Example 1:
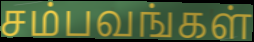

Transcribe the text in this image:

சம்பவங்கள்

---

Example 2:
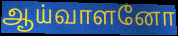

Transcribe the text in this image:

ஆய்வாளனோ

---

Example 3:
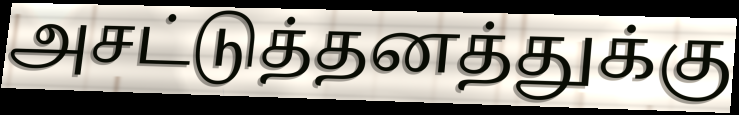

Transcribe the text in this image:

அசட்டுத்தனத்துக்கு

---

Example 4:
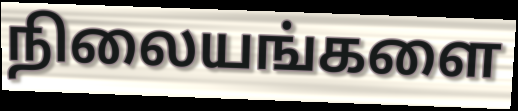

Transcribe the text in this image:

நிலையங்களை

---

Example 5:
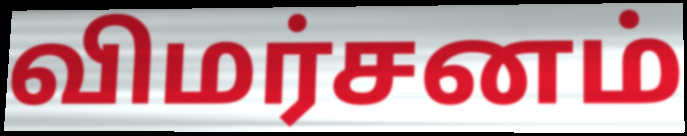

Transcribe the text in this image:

விமர்சனம்